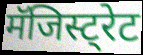
मॅजिस्ट्रेट